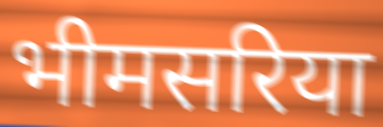
भीमसरिया